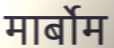
मार्बोम